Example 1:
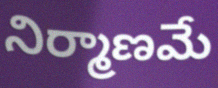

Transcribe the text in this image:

నిర్మాణమే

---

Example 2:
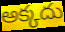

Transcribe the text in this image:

అక్కదు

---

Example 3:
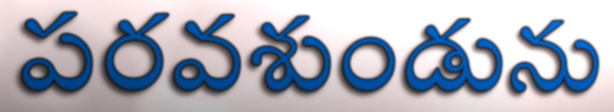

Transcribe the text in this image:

పరవశుండును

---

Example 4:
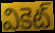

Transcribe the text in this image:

వికెట్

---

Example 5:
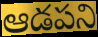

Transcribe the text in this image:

ఆడపని